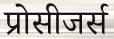
प्रोसीजर्स